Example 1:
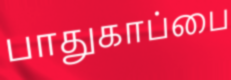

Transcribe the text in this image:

பாதுகாப்பை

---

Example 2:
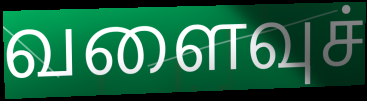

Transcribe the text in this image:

வளைவுச்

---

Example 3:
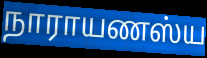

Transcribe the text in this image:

நாராயணஸ்ய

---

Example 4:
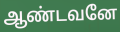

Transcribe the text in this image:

ஆண்டவனே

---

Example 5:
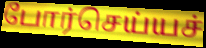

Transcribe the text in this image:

போர்செய்யச்